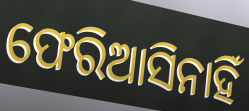
ଫେରିଆସିନାହିଁ